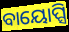
ବାୟୋପ୍ସି